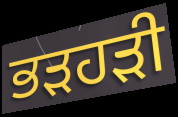
ਭੜਹੜੀ